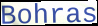
Bohras